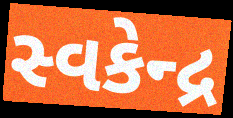
સ્વકેન્દ્ર